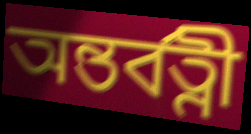
অন্তর্বত্নী